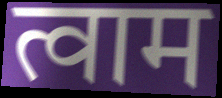
त्वाम